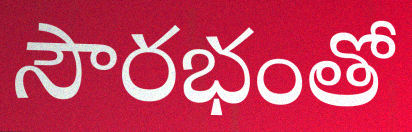
సౌరభంతో